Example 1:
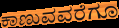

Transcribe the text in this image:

ಕಾಣುವವರೆಗೂ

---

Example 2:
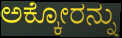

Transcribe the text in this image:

ಅಕ್ಕೋರನ್ನು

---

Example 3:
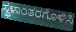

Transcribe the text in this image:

ಸ್ಥಳಾಂತರಗೊಳಿಸಿ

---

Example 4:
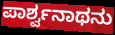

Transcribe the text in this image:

ಪಾರ್ಶ್ವನಾಥನು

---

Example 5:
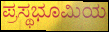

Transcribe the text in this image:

ಪ್ರಸ್ಥಭೂಮಿಯ